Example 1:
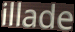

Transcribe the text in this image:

illade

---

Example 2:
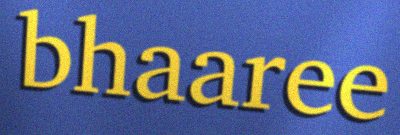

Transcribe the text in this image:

bhaaree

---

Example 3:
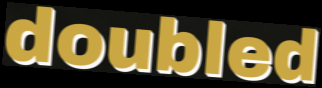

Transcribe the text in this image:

doubled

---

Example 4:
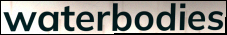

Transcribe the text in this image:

waterbodies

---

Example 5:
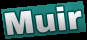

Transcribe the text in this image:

Muir